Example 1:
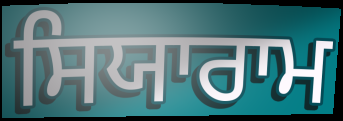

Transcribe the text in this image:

ਸਿਯਾਰਾਮ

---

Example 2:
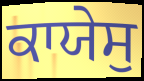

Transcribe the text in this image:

ਕਾਯੇਸੁ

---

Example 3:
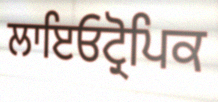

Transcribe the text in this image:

ਲਾਇਓਟ੍ਰੋਪਿਕ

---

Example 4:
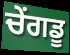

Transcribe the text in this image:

ਚੇਂਗਡੂ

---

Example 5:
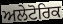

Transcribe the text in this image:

ਅਲੇਟੋਰਿਕ